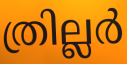
ത്രില്ലർ